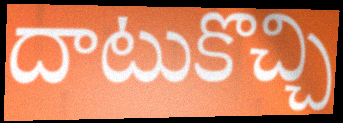
దాటుకొచ్చి